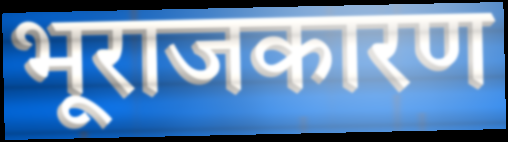
भूराजकारण